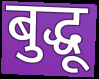
बुद्धू